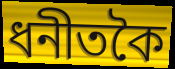
ধনীতকৈ